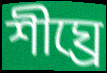
শীঘ্ৰে